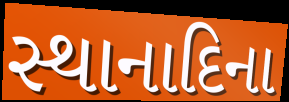
સ્થાનાદિના